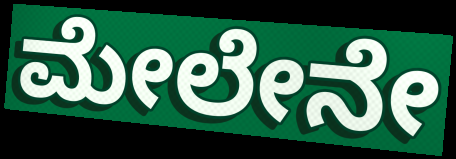
ಮೇಲೇನೇ